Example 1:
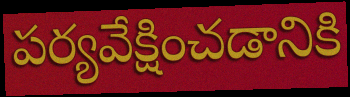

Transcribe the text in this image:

పర్యవేక్షించడానికి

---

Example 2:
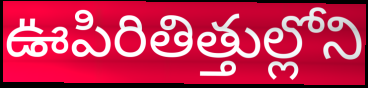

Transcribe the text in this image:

ఊపిరితిత్తుల్లోని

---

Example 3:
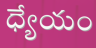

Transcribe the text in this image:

ధ్యేయం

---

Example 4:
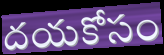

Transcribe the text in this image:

దయకోసం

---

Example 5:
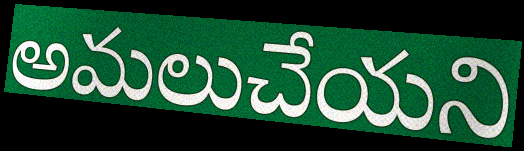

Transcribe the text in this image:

అమలుచేయని